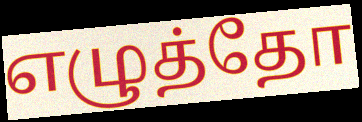
எழுத்தோ